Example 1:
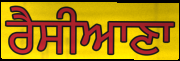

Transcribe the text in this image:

ਰੈਸੀਆਣਾ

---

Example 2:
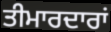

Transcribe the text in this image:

ਤੀਮਾਰਦਾਰਾਂ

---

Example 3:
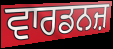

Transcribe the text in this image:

ਵਾਰਡਨਜ਼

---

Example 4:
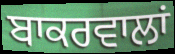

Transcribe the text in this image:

ਬਾਕਰਵਾਲਾਂ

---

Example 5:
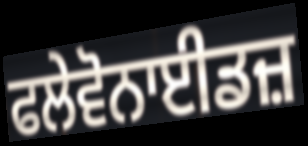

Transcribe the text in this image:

ਫਲੇਵੋਨਾਈਡਜ਼